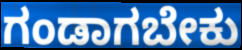
ಗಂಡಾಗಬೇಕು